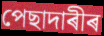
পেছাদাৰীৰ